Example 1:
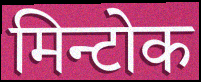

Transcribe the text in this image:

मिन्टोक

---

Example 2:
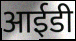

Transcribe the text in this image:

आईडी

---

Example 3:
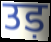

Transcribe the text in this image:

उड़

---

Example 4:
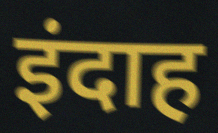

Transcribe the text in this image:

इंदाह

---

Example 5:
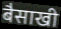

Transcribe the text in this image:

बैसाखी